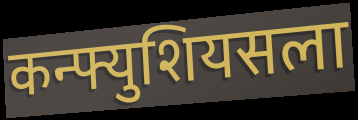
कन्फ्युशियसला